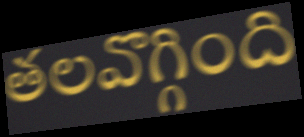
తలవొగ్గింది